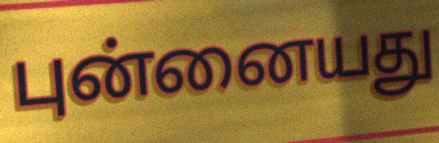
புன்னையது